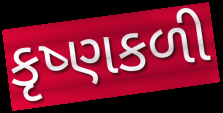
કૃષ્ણકળી